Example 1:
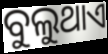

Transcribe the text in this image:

ବୁଲୁଥାଏ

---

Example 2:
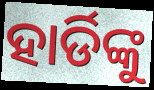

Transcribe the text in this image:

ହାର୍ଡିଙ୍କୁ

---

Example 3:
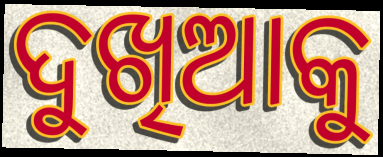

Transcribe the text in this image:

ଦୁଖିଆକୁ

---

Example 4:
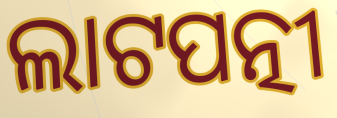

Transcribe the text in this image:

ଲାଟପତ୍ନୀ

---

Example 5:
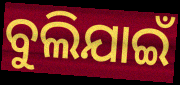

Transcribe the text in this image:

ବୁଲିଯାଇଁ